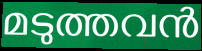
മടുത്തവൻ